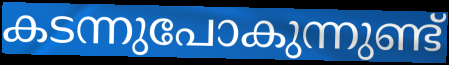
കടന്നുപോകുന്നുണ്ട്